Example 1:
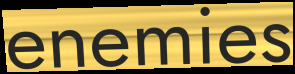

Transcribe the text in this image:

enemies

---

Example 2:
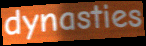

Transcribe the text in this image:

dynasties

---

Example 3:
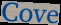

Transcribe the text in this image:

Cove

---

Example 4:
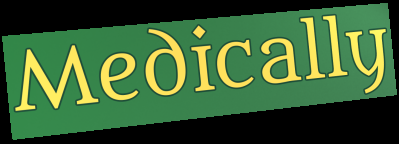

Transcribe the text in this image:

Medically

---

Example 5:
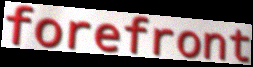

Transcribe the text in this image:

forefront